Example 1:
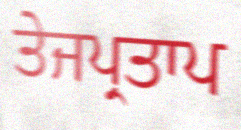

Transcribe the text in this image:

ਤੇਜਪ੍ਰਤਾਪ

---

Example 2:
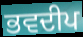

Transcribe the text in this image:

ਭਵਦੀਪ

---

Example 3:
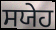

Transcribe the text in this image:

ਸਯੇਹ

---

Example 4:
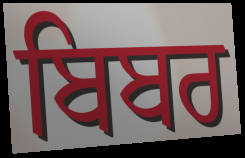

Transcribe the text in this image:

ਬਿਬਰ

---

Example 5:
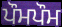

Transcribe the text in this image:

ਪੌਮਪੌਮ